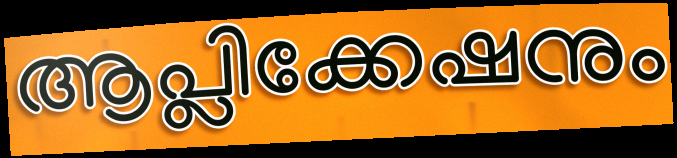
ആപ്ലിക്കേഷനും